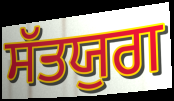
ਸੱਤਯੁਗ